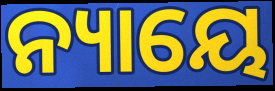
ନ୍ୟାୟେ